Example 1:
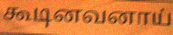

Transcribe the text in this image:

கூடினவனாய்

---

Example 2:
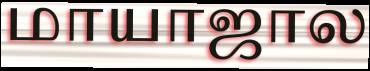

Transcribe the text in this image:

மாயாஜால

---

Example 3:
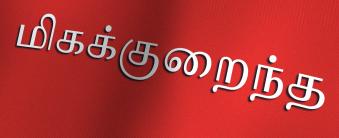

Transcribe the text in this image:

மிகக்குறைந்த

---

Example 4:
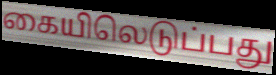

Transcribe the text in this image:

கையிலெடுப்பது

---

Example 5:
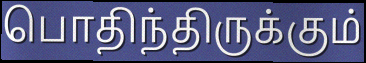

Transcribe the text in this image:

பொதிந்திருக்கும்